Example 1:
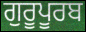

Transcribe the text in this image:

ਗੁਰੂਪੂਰਬ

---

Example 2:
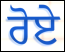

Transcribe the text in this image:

ਰੋਏ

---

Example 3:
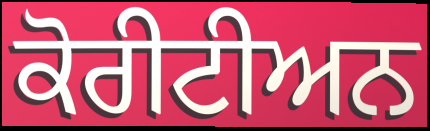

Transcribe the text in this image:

ਕੋਰੀਟੀਅਨ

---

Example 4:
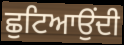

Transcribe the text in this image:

ਛੁਟਿਆਉਂਦੀ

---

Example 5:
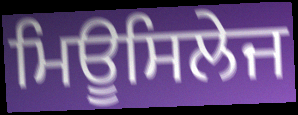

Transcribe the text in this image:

ਮਿਊਸਿਲੇਜ